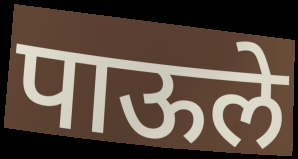
पाऊले